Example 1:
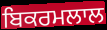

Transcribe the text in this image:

ਬਿਕਰਮਲਾਲ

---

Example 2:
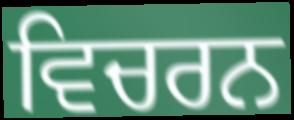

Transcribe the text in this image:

ਵਿਚਰਨ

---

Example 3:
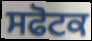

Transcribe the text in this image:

ਸਫੋਟਕ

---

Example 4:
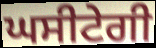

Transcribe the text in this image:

ਘਸੀਟੇਗੀ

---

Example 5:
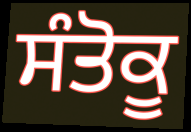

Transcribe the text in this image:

ਸੰਤੋਕੂ